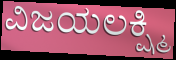
ವಿಜಯಲಕ್ಷ್ಮಿ